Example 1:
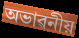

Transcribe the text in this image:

অভাৱনীয়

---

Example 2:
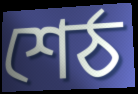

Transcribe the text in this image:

শেঠ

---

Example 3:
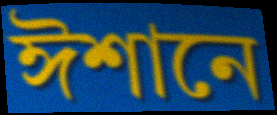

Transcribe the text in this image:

ঈশানে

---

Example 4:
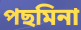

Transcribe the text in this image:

পছমিনা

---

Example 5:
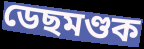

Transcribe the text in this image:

ডেছমণ্ডক